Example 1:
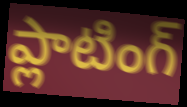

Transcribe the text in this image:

ప్లాటింగ్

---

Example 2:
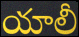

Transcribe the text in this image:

యాలీ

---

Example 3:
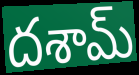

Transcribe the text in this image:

దశామ్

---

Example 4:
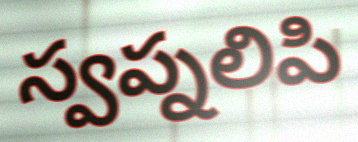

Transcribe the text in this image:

స్వప్నలిపి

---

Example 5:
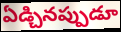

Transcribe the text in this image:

ఏడ్చినప్పుడూ